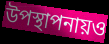
উপস্থাপনায়ও